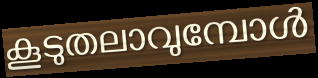
കൂടുതലാവുമ്പോൾ